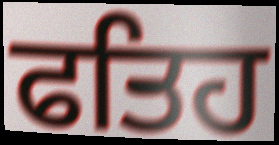
ਫਤਿਹ